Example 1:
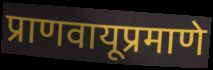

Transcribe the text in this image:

प्राणवायूप्रमाणे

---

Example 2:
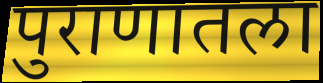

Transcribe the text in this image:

पुराणातला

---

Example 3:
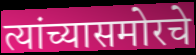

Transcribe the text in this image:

त्यांच्यासमोरचे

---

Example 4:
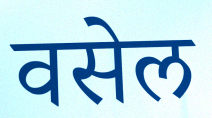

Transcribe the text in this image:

वसेल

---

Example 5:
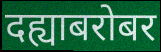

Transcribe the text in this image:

दह्याबरोबर